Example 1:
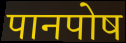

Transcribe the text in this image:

पानपोष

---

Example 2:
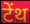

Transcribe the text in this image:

टेंथ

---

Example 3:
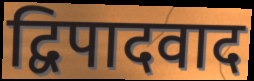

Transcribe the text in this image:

द्विपादवाद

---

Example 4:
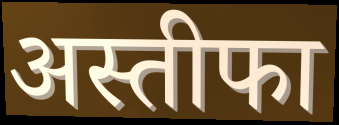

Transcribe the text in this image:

अस्तीफा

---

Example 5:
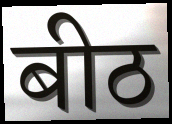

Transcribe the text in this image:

बीठ